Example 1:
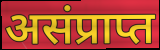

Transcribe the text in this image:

असंप्राप्त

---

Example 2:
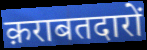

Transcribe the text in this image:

क़राबतदारों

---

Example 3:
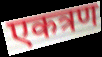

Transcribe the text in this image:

एकत्रण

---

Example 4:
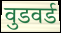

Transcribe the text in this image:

वुडवर्ड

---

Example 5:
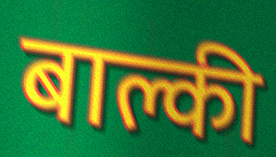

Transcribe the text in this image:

बाल्‍की